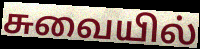
சுவையில்